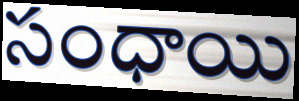
సంధాయి